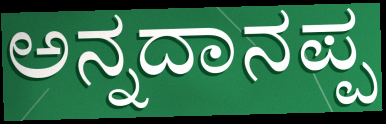
ಅನ್ನದಾನಪ್ಪ